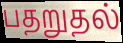
பதறுதல்